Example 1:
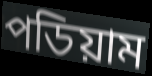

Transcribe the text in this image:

পডিয়াম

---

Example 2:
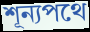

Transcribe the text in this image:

শূন্যপথে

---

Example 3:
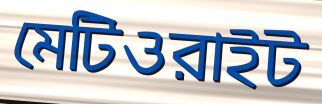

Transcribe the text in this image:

মেটিওরাইট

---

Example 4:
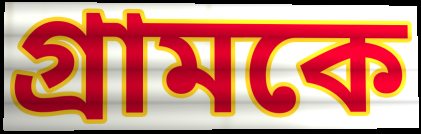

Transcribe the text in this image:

গ্রামকে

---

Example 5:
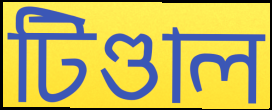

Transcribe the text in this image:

টিণ্ডাল